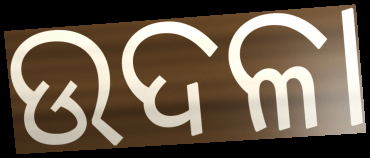
ଉଦଳା